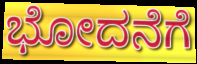
ಭೋದನೆಗೆ